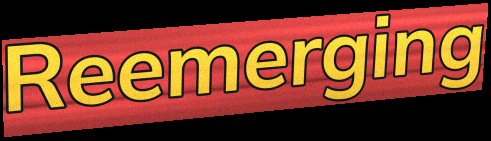
Reemerging